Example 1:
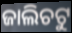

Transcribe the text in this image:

ଜାଲିଚଟୁ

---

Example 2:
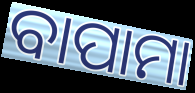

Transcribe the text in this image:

ବାପାମା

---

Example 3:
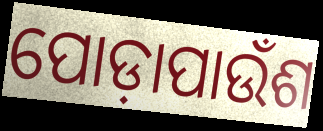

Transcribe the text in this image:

ପୋଡ଼ାପାଉଁଶ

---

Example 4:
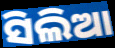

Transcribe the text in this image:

ସିଲିଆ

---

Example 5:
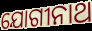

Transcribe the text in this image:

ଯୋଗୀନାଥ